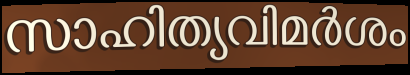
സാഹിത്യവിമർശം